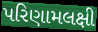
પરિણામલક્ષી